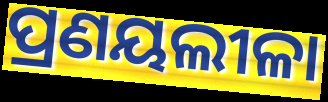
ପ୍ରଣୟଲୀଳା